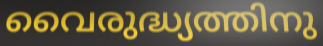
വൈരുദ്ധ്യത്തിനു